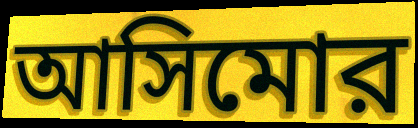
আসিমোর